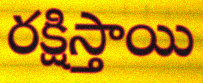
రక్షిస్తాయి